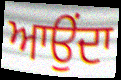
ਆਉਂਦਾ